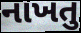
નાખતુ